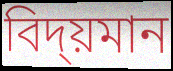
বিদ্য়মান